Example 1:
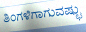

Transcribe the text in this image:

ತಿಂಗಳಿಗಾಗುವಷ್ಟು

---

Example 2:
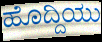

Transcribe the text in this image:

ಹೊದ್ದಿಯು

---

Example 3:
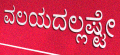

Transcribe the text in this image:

ವಲಯದಲ್ಲಷ್ಟೇ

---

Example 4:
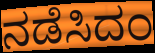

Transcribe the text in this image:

ನಡೆಸಿದಂ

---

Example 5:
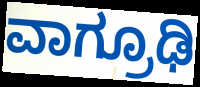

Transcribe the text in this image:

ವಾಗ್ರೂಢಿ